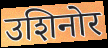
उशिनोर